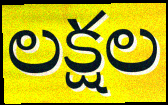
లక్షల